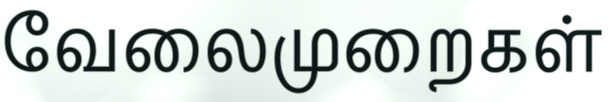
வேலைமுறைகள்